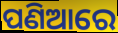
ପଣିଆରେ